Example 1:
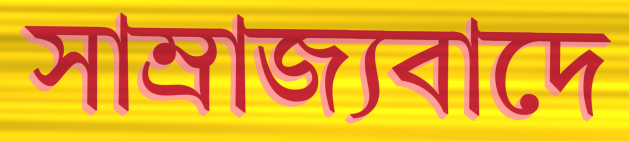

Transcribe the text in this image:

সাম্ৰাজ্যবাদে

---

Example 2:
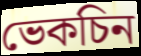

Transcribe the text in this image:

ভেকচিন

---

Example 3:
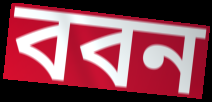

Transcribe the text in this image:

ববন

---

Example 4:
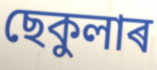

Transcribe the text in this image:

ছেকুলাৰ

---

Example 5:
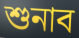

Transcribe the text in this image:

শুনাব